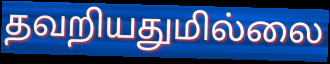
தவறியதுமில்லை